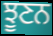
ਝੂਣਨ